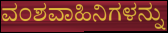
ವಂಶವಾಹಿನಿಗಳನ್ನು